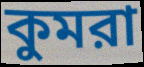
কুমরা